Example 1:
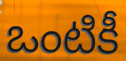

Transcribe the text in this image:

ఒంటికీ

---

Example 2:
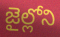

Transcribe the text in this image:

జైల్లోని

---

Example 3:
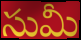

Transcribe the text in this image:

సుమీ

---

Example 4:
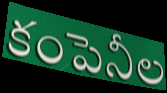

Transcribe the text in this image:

కంపెనీల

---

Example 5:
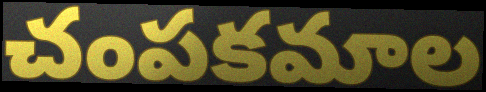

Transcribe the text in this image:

చంపకమాల